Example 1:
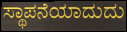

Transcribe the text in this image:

ಸ್ಥಾಪನೆಯಾದುದು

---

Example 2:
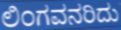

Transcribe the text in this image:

ಲಿಂಗವನರಿದು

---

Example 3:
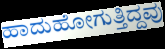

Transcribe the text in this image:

ಹಾದುಹೋಗುತ್ತಿದ್ದವು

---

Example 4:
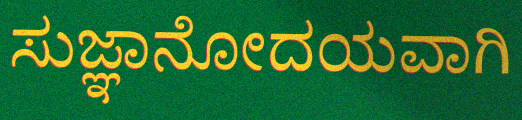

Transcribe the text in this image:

ಸುಜ್ಞಾನೋದಯವಾಗಿ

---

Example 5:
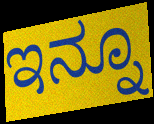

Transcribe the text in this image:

ಇನ್ನೂ